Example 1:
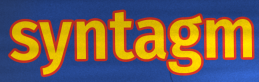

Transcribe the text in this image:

syntagm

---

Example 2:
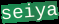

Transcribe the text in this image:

seiya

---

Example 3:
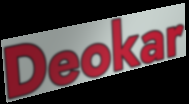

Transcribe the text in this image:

Deokar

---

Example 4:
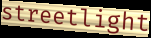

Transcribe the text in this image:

streetlight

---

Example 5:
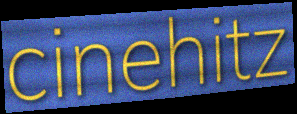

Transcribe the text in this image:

cinehitz